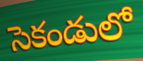
సెకండులో